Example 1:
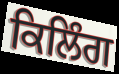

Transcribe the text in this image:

ਕਿਲਿੰਗ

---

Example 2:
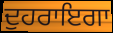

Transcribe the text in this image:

ਦੁਹਰਾਇਗਾ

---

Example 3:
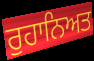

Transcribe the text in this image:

ਰੁਹਾਨਿਅਤ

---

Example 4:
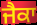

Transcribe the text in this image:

ਜੈਕਾ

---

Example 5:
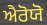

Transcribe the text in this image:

ਐਰੋਯੋ